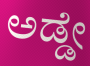
ಅಡ್ಡೇ